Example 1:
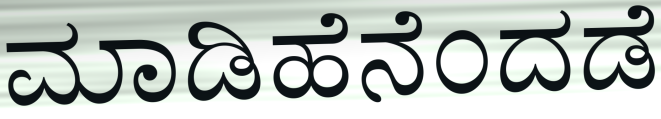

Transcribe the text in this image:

ಮಾಡಿಹೆನೆಂದಡೆ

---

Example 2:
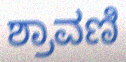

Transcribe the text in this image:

ಶ್ರಾವಣಿ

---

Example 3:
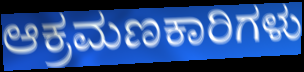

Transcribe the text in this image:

ಆಕ್ರಮಣಕಾರಿಗಳು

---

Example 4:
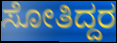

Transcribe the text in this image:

ಸೋತಿದ್ದರ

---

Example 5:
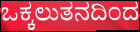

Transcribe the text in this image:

ಒಕ್ಕಲುತನದಿಂದ